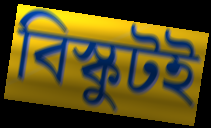
বিস্কুটই